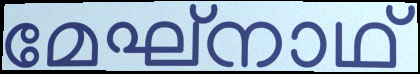
മേഘ്നാഥ്